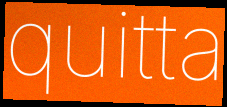
quitta